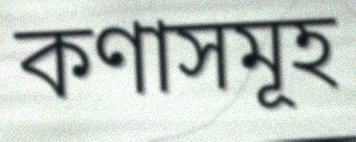
কণাসমূহ